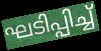
ഘടിപ്പിച്ച്